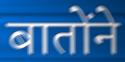
बातोंने